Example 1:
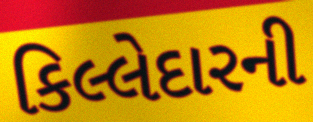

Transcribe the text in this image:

કિલ્લેદારની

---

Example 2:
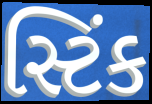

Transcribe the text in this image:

સ્ટિંક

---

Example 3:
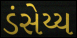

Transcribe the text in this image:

ડંસેય્ય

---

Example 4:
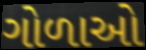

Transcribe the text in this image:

ગોળાઓ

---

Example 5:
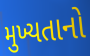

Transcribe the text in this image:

મુખ્યતાનો